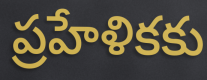
ప్రహేళికకు